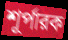
শূর্পারক